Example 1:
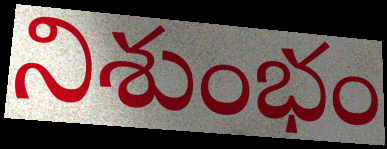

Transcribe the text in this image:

నిశుంభం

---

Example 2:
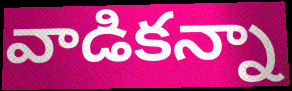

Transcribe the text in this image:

వాడికన్నా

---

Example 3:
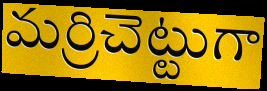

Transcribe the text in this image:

మర్రిచెట్టుగా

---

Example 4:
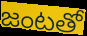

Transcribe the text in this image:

జంటతో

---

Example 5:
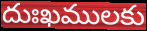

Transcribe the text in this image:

దుఃఖములకు